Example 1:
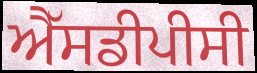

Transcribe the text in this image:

ਐੱਸਡੀਪੀਸੀ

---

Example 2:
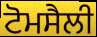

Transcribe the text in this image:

ਟੋਮਸੈਲੀ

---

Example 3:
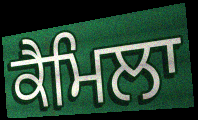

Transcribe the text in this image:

ਕੈਮਿਲਾ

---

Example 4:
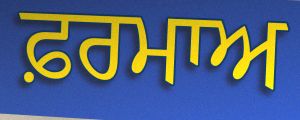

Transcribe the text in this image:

ਫ਼ਰਮਾਅ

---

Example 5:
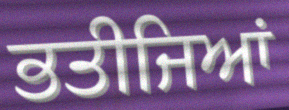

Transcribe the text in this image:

ਭਤੀਜਿਆਂ